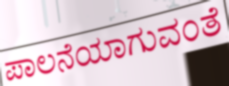
ಪಾಲನೆಯಾಗುವಂತೆ